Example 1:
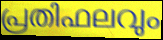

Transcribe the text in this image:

പ്രതിഫലവും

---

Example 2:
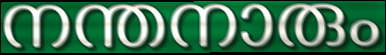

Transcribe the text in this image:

നന്തനാരും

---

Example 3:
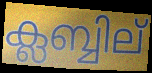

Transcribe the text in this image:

ക്ലബ്ബില്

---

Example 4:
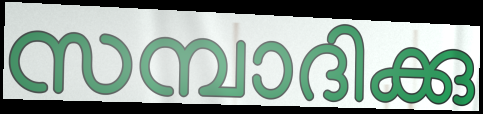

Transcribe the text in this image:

സമ്പാദിക്കു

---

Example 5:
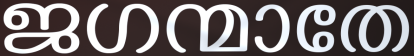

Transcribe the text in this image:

ജഗന്മാതേ